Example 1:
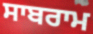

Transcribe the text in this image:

ਸਾਬਰਾਮ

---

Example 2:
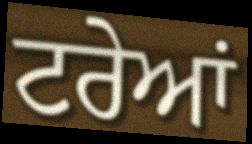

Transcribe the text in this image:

ਟਰੇਆਂ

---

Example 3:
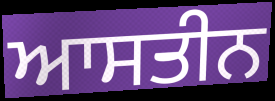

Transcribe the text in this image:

ਆਸਤੀਨ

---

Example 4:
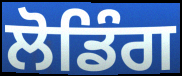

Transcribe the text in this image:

ਲੋਡਿੰਗ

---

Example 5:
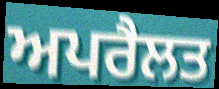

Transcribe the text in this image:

ਅਪਰੈਲਤ